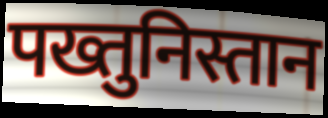
पख्तुनिस्तान